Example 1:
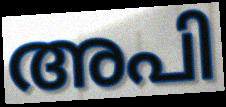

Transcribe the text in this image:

അപി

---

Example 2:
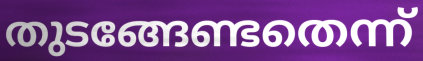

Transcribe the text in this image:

തുടങ്ങേണ്ടതെന്ന്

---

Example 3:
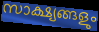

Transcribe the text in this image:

സാക്ഷ്യങ്ങളും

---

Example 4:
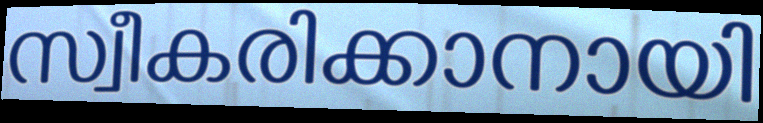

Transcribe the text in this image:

സ്വീകരിക്കാനായി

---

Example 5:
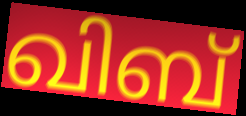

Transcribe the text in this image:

ഖിബ്